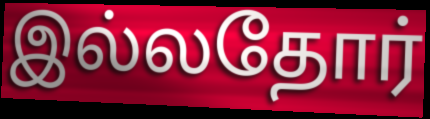
இல்லதோர்